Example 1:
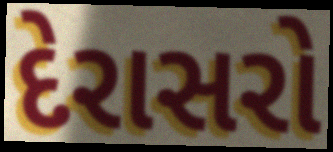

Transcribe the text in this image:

દેરાસરો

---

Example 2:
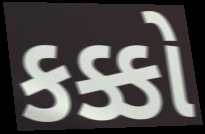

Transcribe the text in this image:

કક્કો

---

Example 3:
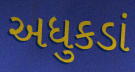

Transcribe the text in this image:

અધુકડાં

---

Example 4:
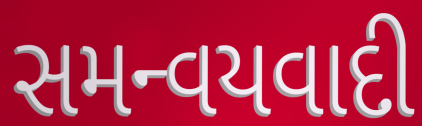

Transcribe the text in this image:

સમન્વયવાદી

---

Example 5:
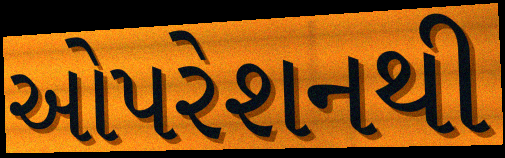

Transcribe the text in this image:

ઓપરેશનથી